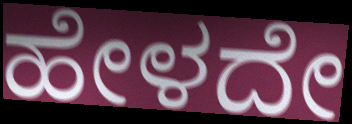
ಹೇಳದೇ